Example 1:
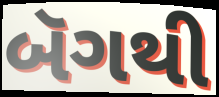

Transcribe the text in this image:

બૅગથી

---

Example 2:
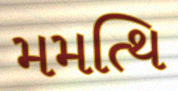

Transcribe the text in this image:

મમત્થિ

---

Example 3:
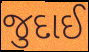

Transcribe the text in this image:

જુદાઈ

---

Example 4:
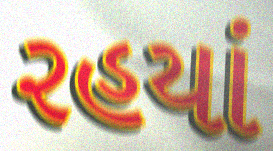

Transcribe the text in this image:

રહયાં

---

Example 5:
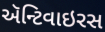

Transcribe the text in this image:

ઍન્ટિવાઇરસ